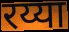
रय्या